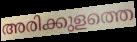
അരിക്കുളത്തെ